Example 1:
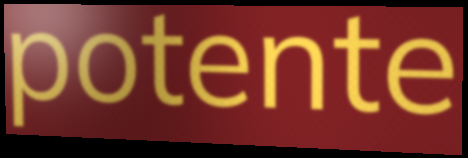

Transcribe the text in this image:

potente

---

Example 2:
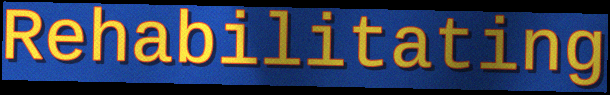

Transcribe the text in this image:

Rehabilitating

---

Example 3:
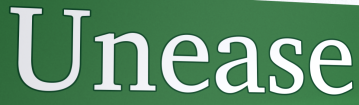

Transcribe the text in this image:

Unease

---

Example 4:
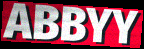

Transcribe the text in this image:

ABBYY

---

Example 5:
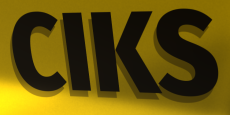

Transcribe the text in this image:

CIKS